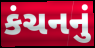
કંચનનું